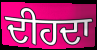
ਦੀਹਦਾ